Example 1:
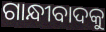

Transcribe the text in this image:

ଗାନ୍ଧୀବାଦକୁ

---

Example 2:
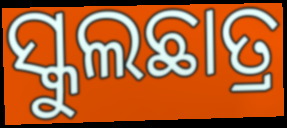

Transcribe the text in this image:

ସ୍କୁଲଛାତ୍ର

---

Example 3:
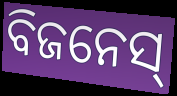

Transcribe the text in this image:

ବିଜନେସ୍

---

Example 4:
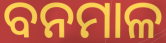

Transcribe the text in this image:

ବନମାଳ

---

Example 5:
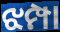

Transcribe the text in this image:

ଝମ୍ପା